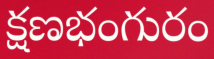
క్షణభంగురం